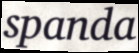
spanda